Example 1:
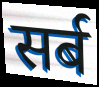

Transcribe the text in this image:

सर्ब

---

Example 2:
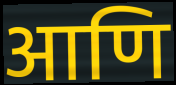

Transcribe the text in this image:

आणि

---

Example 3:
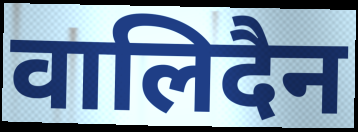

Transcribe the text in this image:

वालिदैन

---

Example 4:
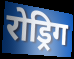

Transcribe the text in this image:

रोड्रिग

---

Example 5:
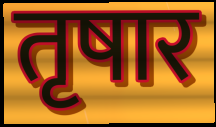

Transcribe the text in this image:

तृषार